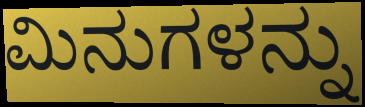
ಮಿನುಗಳನ್ನು